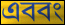
এববং